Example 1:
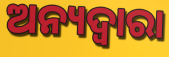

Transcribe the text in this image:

ଅନ୍ୟଦ୍ୱାରା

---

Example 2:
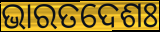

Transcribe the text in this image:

ଭାରତଦେଶଃ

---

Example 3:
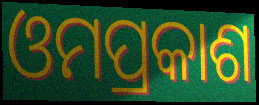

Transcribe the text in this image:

ଓମପ୍ରକାଶ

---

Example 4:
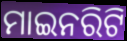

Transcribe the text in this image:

ମାଇନରିଟି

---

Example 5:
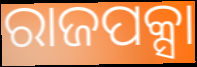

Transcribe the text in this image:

ରାଜପକ୍ସା